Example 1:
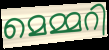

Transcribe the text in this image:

മെമ്മറി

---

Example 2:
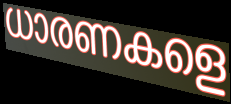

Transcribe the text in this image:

ധാരണകളെ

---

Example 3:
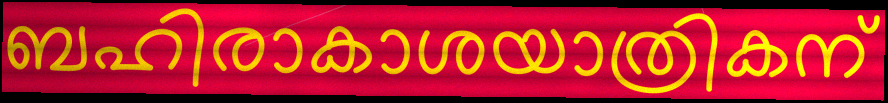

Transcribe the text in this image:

ബഹിരാകാശയാത്രികന്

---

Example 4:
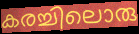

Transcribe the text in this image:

കരച്ചിലൊരു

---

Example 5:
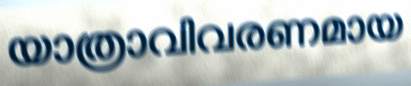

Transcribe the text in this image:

യാത്രാവിവരണമായ